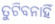
ତୁଟିବନାହିଁ